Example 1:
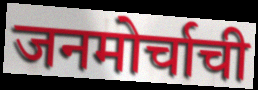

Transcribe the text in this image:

जनमोर्चाची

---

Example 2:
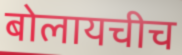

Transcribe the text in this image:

बोलायचीच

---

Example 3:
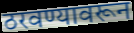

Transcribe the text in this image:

ठरवण्यावरून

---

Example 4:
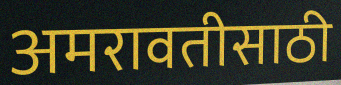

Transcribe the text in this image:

अमरावतीसाठी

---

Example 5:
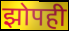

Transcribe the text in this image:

झोपही